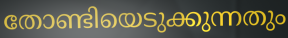
തോണ്ടിയെടുക്കുന്നതും